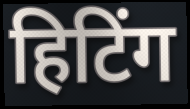
हिटिंग